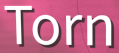
Torn